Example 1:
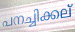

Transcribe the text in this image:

പനച്ചിക്കല്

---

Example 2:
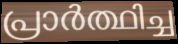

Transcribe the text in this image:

പ്രാർത്ഥിച്ച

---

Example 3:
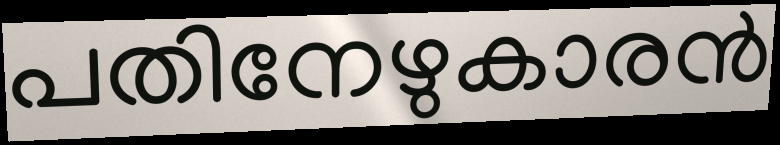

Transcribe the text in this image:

പതിനേഴുകാരൻ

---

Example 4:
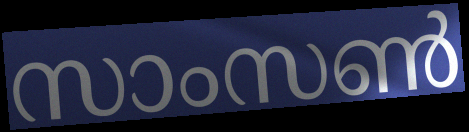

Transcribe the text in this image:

സാംസൺ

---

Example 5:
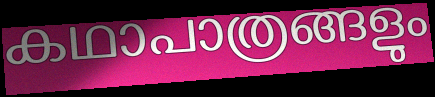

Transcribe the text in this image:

കഥാപാത്രങ്ങളും